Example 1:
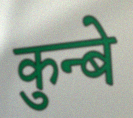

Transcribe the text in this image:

कुन्बे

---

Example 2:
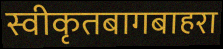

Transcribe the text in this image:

स्वीकृतबागबाहरा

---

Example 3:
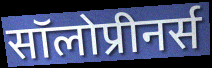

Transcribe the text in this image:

सॉलोप्रीनर्स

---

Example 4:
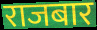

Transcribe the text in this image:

राजबार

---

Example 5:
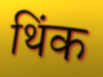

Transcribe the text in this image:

थिंक